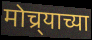
मोच्र्याच्या